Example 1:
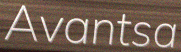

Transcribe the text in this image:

Avantsa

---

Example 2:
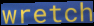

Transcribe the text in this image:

wretch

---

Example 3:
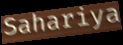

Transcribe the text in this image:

Sahariya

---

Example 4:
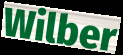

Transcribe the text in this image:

Wilber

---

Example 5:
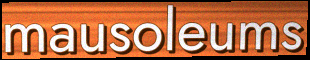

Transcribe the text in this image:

mausoleums